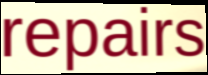
repairs